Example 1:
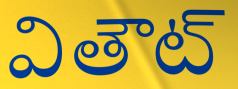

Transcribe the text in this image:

వితౌట్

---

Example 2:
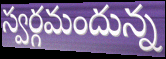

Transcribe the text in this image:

స్వర్గమందున్న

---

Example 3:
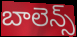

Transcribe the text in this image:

బాలెన్స్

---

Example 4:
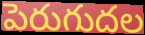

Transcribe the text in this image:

పెరుగుదల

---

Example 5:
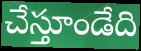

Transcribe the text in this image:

చేస్తూండేది